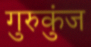
गुरुकुंज